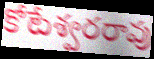
కోటేశ్వరరావు